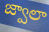
జ్వాలా